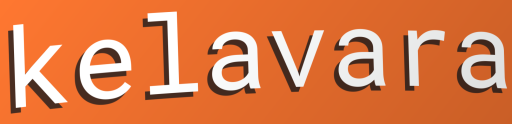
kelavara